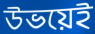
উভয়েই